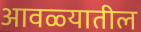
आवळ्यातील